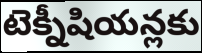
టెక్నీషియన్లకు